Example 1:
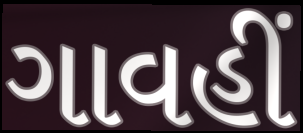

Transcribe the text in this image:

ગાવહીં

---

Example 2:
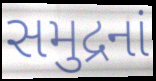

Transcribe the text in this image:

સમુદ્રનાં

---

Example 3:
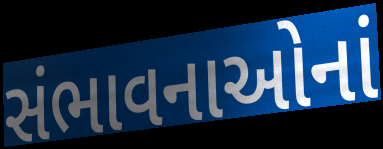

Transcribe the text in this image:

સંભાવનાઓનાં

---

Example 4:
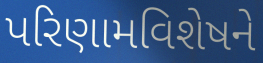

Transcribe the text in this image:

પરિણામવિશેષને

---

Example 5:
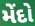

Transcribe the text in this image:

મેંદો